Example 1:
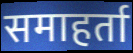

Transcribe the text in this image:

समाहर्ता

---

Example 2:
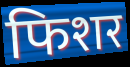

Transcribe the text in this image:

फिशर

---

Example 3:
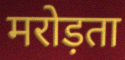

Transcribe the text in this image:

मरोड़ता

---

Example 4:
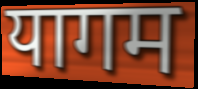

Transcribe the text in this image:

यागम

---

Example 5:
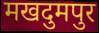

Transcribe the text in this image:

मखदुमपुर